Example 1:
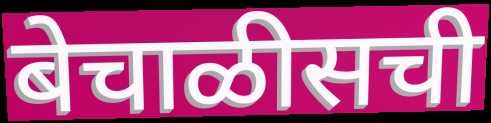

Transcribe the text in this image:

बेचाळीसची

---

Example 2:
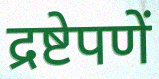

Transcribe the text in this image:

द्रष्टेपणें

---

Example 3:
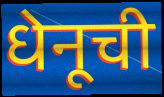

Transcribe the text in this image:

धेनूची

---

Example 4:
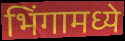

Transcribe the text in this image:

भिंगामध्ये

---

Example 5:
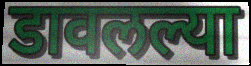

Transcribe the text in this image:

डावलल्या